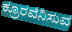
ಕ್ರೂರವೆನಿಸುವ